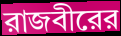
রাজবীরের